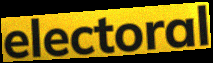
electoral